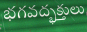
భగవద్భక్తులు